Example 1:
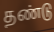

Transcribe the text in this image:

தண்டு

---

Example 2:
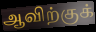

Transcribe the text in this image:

ஆவிற்குக்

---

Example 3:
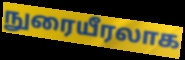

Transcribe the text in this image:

நுரையீரலாக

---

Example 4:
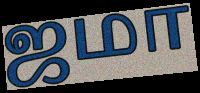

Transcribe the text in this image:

ஜமா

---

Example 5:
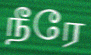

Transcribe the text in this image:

நீரே